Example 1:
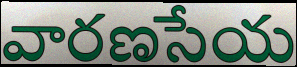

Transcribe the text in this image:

వారణసేయ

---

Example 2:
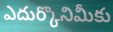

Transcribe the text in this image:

ఎదుర్కొనిమీకు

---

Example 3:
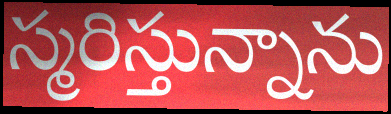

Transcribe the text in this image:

స్మరిస్తున్నాను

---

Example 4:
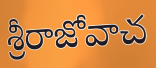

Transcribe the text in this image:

శ్రీరాజోవాచ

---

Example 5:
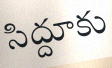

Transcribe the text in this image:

సిద్దూకు